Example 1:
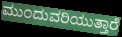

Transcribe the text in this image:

ಮುಂದುವರಿಯುತ್ತಾರೆ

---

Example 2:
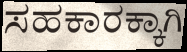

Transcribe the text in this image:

ಸಹಕಾರಕ್ಕಾಗಿ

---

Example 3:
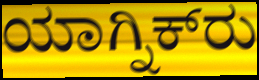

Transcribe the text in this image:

ಯಾಗ್ನಿಕ್‍ರು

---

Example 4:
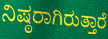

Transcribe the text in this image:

ನಿಷ್ಠರಾಗಿರುತ್ತಾರೆ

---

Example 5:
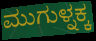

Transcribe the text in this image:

ಮುಗುಳ್ನಕ್ಕ